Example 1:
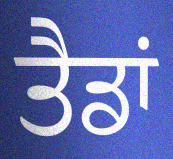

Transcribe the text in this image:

ਤੈਡਾਂ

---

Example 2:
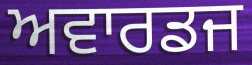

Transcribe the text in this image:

ਅਵਾਰਡਜ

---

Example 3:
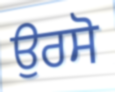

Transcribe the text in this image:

ਉਰਸੋ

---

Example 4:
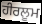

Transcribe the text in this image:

ਹੀਰਲੂਮ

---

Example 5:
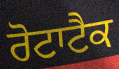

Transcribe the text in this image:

ਰੋਟਾਟੈਕ